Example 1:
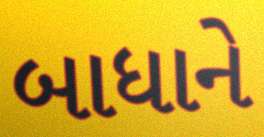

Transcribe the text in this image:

બાધાને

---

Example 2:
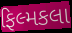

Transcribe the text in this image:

ફિલ્મકલા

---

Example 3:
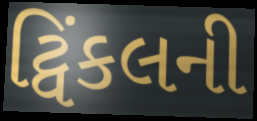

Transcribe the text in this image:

ટ્વિંકલની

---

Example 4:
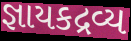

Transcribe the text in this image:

જ્ઞાયકદ્રવ્ય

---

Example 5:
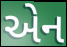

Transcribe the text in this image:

એન